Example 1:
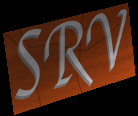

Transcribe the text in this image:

SRV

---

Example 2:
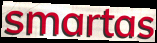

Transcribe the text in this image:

smartas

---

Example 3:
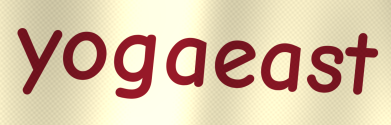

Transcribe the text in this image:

yogaeast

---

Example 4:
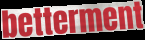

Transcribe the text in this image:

betterment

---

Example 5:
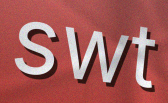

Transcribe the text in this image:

swt